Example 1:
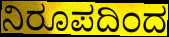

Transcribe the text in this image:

ನಿರೂಪದಿಂದ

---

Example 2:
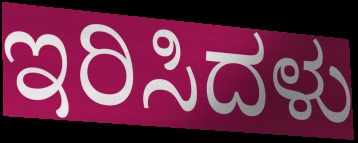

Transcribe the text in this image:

ಇರಿಸಿದಳು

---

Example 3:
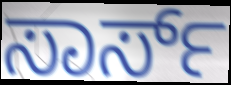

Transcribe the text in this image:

ಸಾರ್ಸ್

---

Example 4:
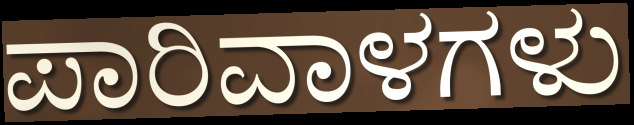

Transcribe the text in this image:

ಪಾರಿವಾಳಗಳು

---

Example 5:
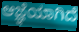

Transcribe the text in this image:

ಆಜ್ಞೆಯಾಗಿದೆ